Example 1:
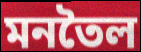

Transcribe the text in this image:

মনতৈল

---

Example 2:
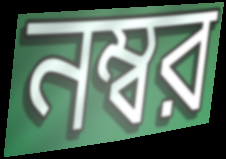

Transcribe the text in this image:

নম্বর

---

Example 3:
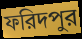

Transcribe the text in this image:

ফরিদপুর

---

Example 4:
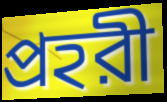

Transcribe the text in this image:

প্রহরী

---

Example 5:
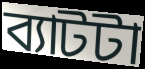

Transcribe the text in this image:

ব্যাটটা